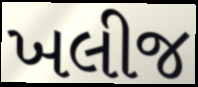
ખલીજ